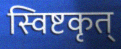
स्विष्टकृत्